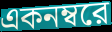
একনম্বরে